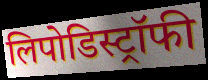
लिपोडिस्ट्रॉफी